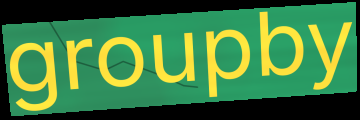
groupby